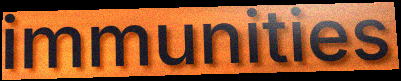
immunities